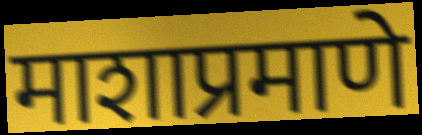
माशाप्रमाणे